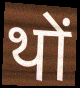
थों